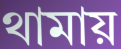
থামায়